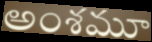
అంశమూ